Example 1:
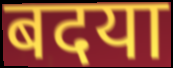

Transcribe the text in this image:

बदया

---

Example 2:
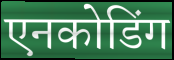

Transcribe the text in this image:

एनकोडिंग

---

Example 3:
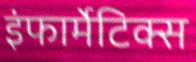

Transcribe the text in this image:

इंफार्मेटिक्स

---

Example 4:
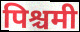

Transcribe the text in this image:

पिश्चमी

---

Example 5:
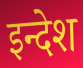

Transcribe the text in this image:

इन्देश